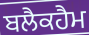
ਬਲੈਕਹੈਮ